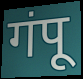
गंपू